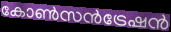
കോൺസൻട്രേഷൻ